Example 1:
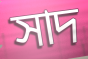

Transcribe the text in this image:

সাদ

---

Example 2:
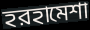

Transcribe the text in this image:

হরহামেশা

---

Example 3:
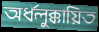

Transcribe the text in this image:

অর্ধলুক্কায়িত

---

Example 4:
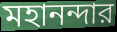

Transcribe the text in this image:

মহানন্দার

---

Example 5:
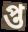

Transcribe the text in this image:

প্ত